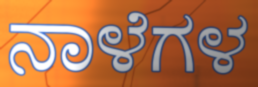
ನಾಳೆಗಳ